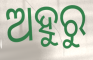
ଅହୁରୁ